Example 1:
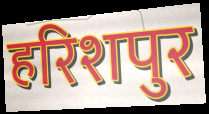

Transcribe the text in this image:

हरिशपुर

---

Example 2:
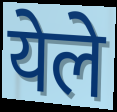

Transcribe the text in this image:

येले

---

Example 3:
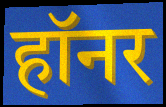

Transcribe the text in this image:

हॉनर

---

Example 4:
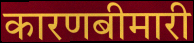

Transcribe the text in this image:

कारणबीमारी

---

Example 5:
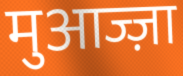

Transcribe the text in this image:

मुआज्ज़ा